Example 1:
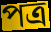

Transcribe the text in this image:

পত্র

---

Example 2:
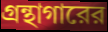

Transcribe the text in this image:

গ্রন্থাগারের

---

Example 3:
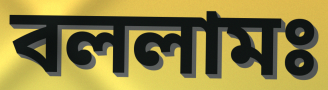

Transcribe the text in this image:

বললামঃ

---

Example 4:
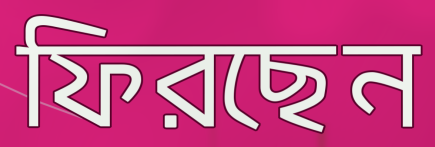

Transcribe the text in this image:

ফিরছেন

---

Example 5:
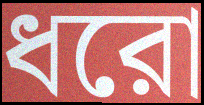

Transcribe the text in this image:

ধরো